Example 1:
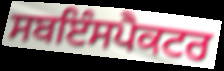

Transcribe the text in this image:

ਸਬਇੰਸਪੈਕਟਰ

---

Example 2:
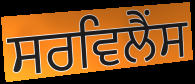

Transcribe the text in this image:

ਸਰਵਿਲੈਂਸ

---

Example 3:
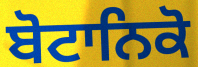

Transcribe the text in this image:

ਬੋਟਾਨਿਕੋ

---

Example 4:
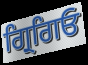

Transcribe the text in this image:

ਗ੍ਰਿਗਿਓ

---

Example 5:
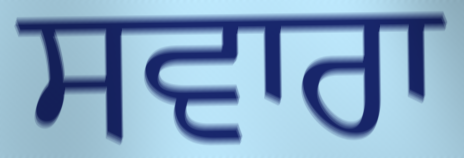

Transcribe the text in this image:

ਸਵਾਰਾ